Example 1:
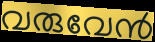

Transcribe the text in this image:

വരുവേൻ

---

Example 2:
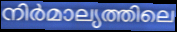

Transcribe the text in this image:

നിർമാല്യത്തിലെ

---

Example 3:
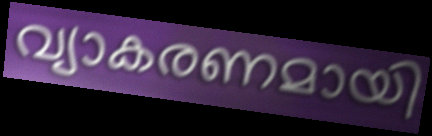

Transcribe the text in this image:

വ്യാകരണമായി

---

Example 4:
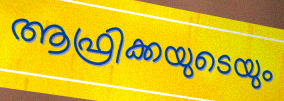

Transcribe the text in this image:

ആഫ്രിക്കയുടെയും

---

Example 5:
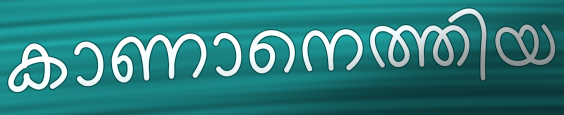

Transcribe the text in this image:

കാണാനെത്തിയ